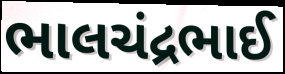
ભાલચંદ્રભાઈ